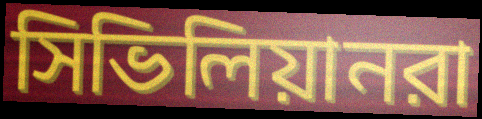
সিভিলিয়ানরা